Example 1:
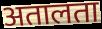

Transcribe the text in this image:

अतालता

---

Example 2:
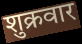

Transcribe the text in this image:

शुक्रवार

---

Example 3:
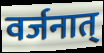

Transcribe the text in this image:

वर्जनात्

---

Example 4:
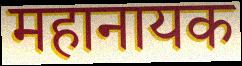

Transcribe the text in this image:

महानायक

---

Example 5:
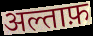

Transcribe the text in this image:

अल्ताफ़